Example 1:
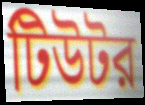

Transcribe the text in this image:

টিউটর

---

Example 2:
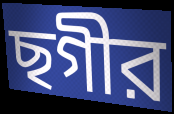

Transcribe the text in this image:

ছগীর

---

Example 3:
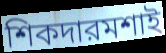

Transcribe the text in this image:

শিকদারমশাই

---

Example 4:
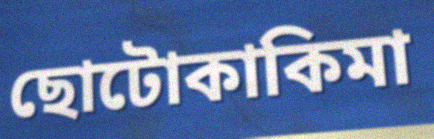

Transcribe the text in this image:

ছোটোকাকিমা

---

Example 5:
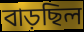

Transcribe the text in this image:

বাড়ছিল